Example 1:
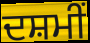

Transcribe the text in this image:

ਦਸ਼ਮੀਂ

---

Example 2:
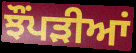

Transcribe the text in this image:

ਝੌਂਪੜੀਆਂ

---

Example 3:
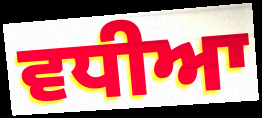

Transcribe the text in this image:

ਵਧੀਆ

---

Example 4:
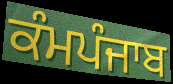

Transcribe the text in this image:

ਕੰਮਪੰਜਾਬ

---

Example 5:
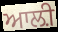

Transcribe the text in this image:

ਆਲ਼ੀ